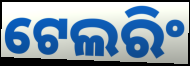
ଟେଲରିଂ